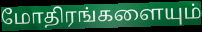
மோதிரங்களையும்